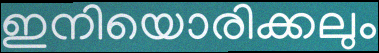
ഇനിയൊരിക്കലും